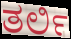
ತರ್ಲಿ